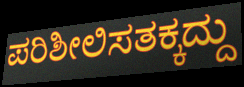
ಪರಿಶೀಲಿಸತಕ್ಕದ್ದು